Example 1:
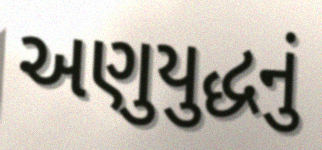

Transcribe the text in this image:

અણુયુદ્ધનું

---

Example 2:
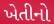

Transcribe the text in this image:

ખેતીનો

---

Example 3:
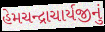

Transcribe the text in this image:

હેમચન્દ્રાચાર્યજીનું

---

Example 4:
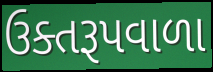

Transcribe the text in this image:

ઉક્તરૂપવાળા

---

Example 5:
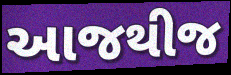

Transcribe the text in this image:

આજથીજ